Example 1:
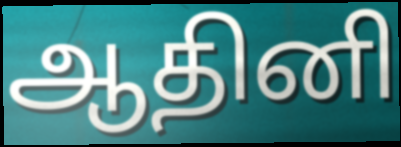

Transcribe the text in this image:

ஆதினி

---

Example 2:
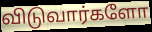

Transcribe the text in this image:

விடுவார்களோ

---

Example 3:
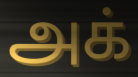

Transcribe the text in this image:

அக்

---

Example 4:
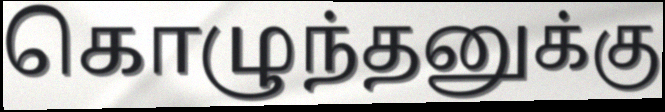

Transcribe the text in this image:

கொழுந்தனுக்கு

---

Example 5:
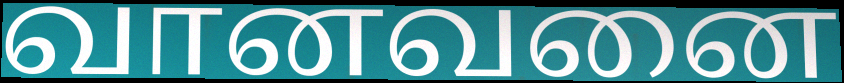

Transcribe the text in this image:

வானவனை